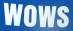
wows